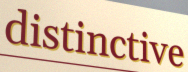
distinctive